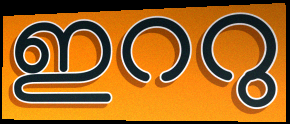
ഇററു